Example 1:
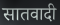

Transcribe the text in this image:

सातवादी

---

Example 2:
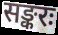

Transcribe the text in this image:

सङ्करः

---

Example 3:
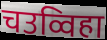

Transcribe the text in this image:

चउव्विहा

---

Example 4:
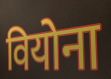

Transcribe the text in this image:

वियोना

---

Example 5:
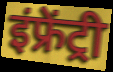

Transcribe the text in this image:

इंफ्रेंट्री